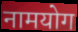
नामयोग